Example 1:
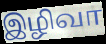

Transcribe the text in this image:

இழிவா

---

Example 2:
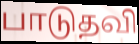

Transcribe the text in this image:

பாடுதவி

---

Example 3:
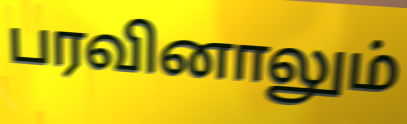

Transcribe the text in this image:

பரவினாலும்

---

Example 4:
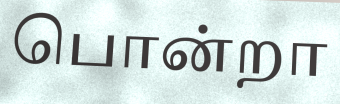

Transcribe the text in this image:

பொன்றா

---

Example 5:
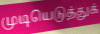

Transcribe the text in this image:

முடியெடுத்துக்